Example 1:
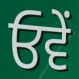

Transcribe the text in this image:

ਓਵੇਂ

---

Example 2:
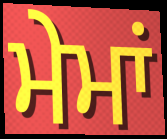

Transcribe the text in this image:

ਮੇਮਾਂ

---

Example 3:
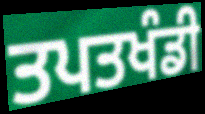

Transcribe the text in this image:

ਤਪਤਖੰਡੀ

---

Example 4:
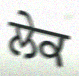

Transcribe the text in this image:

ਲੇਕ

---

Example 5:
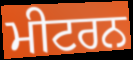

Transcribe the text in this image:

ਮੀਟਰਨ